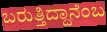
ಬರುತ್ತಿದ್ದಾನೆಂಬ